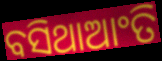
ବସିଥାଆଂତି